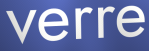
verre